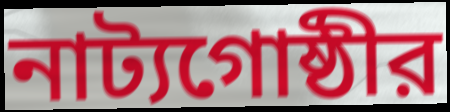
নাট্যগোষ্ঠীর